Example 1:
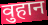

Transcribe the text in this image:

वुहान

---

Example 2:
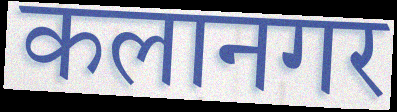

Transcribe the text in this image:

कलानगर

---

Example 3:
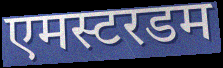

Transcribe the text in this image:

एमस्टरडम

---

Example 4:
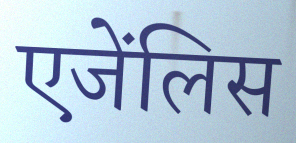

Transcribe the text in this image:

एजेंलिस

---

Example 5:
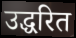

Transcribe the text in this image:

उद्धरित